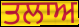
ਤਲਾਅ